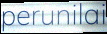
perunilai